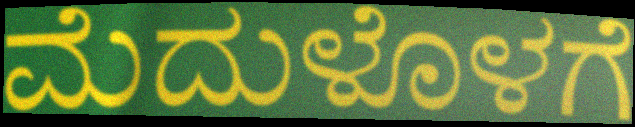
ಮೆದುಳೊಳಗೆ